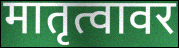
मातृत्वावर